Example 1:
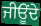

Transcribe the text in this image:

ਜੀਊਂਦੇ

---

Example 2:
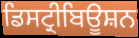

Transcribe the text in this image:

ਡਿਸਟ੍ਰੀਬਿਊਸ਼ਨ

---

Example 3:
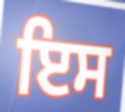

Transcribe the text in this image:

ਇਸ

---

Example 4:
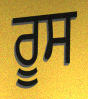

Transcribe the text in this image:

ਰੂਸ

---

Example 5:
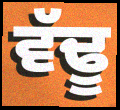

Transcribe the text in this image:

ਵੱਢੂ